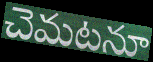
చెమటనూ